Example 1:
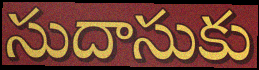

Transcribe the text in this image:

సుదాసుకు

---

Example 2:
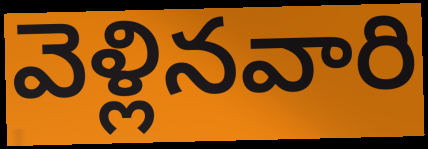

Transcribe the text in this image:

వెళ్లినవారి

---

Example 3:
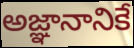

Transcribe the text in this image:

అజ్ఞానానికే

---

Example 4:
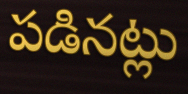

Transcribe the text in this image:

పడినట్లు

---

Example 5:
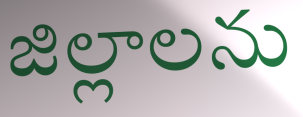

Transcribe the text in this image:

జిల్లాలను